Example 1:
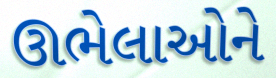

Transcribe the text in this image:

ઊભેલાઓને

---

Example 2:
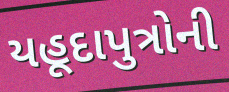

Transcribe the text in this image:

યહૂદાપુત્રોની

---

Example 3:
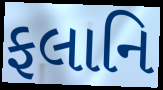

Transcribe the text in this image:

ફલાનિ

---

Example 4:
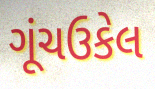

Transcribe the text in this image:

ગૂંચઉકેલ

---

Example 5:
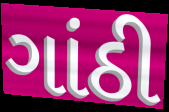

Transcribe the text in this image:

ગાંઠી